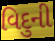
વિદુની